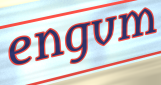
engum